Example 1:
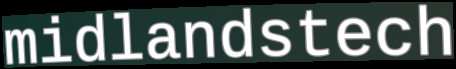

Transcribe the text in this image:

midlandstech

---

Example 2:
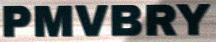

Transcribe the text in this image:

PMVBRY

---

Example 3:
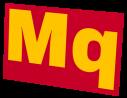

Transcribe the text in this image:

Mq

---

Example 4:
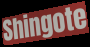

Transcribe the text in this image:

Shingote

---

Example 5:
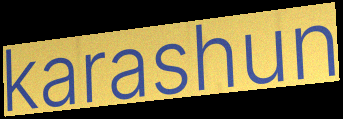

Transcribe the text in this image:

karashun